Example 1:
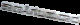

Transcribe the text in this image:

ಕಾಣಸಿಗಬಹುದಾದ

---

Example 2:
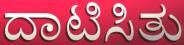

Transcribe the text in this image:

ದಾಟಿಸಿತು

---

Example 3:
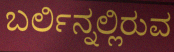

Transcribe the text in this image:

ಬರ್ಲಿನ್ನಲ್ಲಿರುವ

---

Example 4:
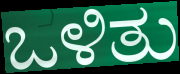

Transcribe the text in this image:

ಒಳಿತು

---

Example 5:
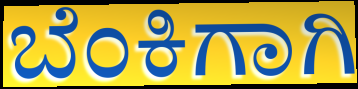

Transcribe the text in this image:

ಬೆಂಕಿಗಾಗಿ